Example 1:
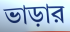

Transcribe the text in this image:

ভাড়ার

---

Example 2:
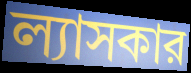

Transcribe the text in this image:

ল্যাসকার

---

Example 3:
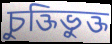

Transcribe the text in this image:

চুক্তিভুক্ত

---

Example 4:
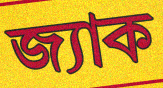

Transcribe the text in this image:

জ্যাক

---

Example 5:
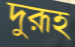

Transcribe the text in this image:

দুরূহ